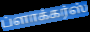
ப்ளாக்கர்ஸ்